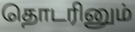
தொடரினும்